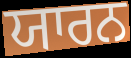
ਯਾਰਨ